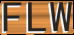
FLW